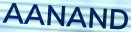
AANAND